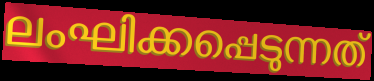
ലംഘിക്കപ്പെടുന്നത്